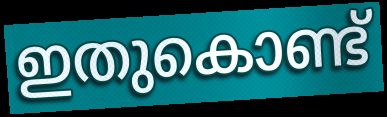
ഇതുകൊണ്ട്